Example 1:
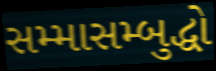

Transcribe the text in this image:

સમ્માસમ્બુદ્ધો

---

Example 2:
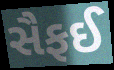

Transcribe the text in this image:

સૈફઈ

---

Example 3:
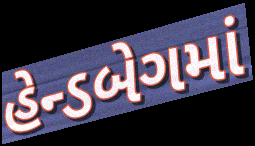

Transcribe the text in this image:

હેન્ડબેગમાં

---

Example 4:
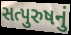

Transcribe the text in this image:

સત્પુરુષનું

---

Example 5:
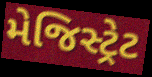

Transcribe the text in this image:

મેજિસ્ટ્રેટ